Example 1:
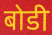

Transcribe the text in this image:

बोडी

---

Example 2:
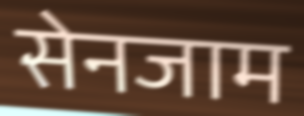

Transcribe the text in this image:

सेनजाम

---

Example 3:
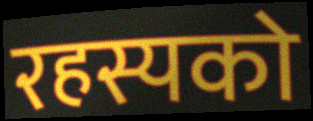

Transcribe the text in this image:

रहस्यको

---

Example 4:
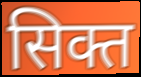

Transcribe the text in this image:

सिक्त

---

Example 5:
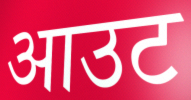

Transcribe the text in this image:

आउट